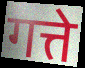
गत्ते